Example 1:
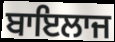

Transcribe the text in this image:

ਬਾਇਲਾਜ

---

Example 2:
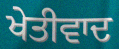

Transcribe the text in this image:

ਖੇਤੀਵਾਦ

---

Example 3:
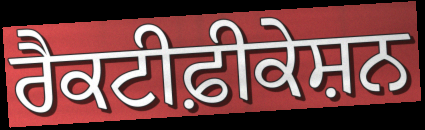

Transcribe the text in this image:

ਰੈਕਟੀਫ਼ੀਕੇਸ਼ਨ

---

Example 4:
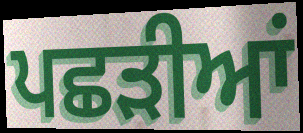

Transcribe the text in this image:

ਪਛੜੀਆਂ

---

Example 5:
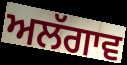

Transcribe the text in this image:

ਅਲੱਗਾਵ